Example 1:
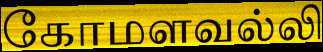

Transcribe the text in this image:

கோமளவல்லி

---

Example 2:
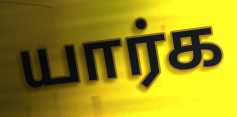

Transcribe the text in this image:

யார்க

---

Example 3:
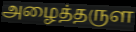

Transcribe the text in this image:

அழைத்தருள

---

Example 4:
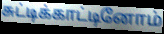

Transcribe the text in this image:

சுட்டிக்காட்டினோம்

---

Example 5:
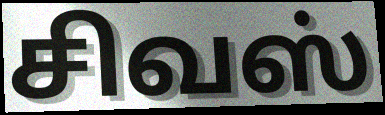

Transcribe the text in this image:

சிவஸ்